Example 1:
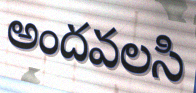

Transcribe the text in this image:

అందవలసి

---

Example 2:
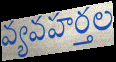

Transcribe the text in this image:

వ్యవహర్తల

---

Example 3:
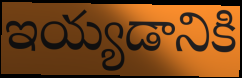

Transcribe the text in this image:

ఇయ్యడానికి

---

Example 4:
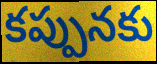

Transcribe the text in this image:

కప్పునకు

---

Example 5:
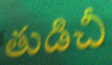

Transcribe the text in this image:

తుడిచీ